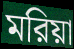
মরিয়া